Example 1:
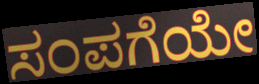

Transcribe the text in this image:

ಸಂಪಗೆಯೇ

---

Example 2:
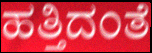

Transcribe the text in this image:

ಹತ್ತಿದಂತೆ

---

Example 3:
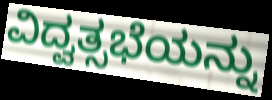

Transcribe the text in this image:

ವಿದ್ವತ್ಸಭೆಯನ್ನು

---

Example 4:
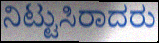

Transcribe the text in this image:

ನಿಟ್ಟುಸಿರಾದರು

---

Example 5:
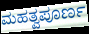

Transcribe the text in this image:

ಮಹತ್ವಪೂರ್ಣ